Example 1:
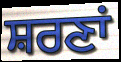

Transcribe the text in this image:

ਸ਼ਰਣਾਂ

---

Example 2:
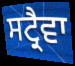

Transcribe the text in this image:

ਸਟ੍ਰੈਵਾ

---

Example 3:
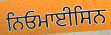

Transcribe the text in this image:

ਨਿਓਮਾਈਸਿਨ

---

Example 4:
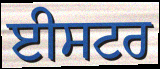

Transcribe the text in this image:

ਈਸਟਰ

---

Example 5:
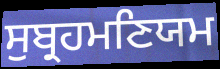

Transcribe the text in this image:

ਸੁਬ੍ਰਹਮਣਿਯਮ